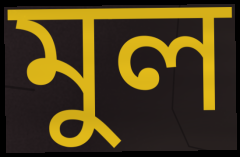
মুল